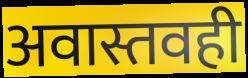
अवास्तवही